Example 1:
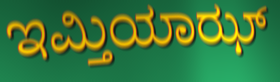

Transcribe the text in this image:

ಇಮ್ತಿಯಾಝ್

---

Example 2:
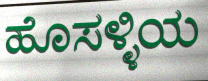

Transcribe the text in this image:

ಹೊಸಳ್ಳಿಯ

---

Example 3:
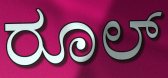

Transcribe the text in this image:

ರೂಲ್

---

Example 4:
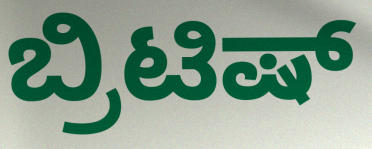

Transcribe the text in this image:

ಬ್ರಿಟಿಷ್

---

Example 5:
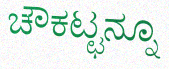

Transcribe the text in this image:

ಚೌಕಟ್ಟನ್ನೂ